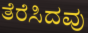
ತೆರೆಸಿದವು